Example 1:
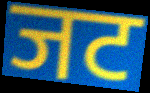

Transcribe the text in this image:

जट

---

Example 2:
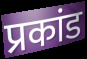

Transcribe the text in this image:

प्रकांड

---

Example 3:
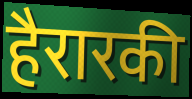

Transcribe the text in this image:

हैरारकी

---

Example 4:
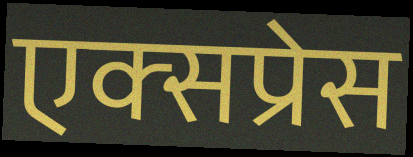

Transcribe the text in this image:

एक्‍सप्रेस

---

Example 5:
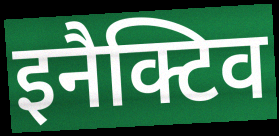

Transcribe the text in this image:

इनैक्टिव